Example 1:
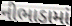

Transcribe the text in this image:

નીભાડામાં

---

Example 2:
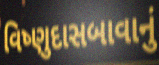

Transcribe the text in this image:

વિષ્ણુદાસબાવાનું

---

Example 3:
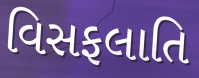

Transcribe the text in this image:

વિસફલાતિ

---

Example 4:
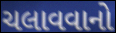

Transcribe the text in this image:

ચલાવવાનો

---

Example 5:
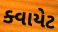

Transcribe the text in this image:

ક્વાયેટ